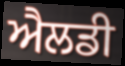
ਐਲਡੀ